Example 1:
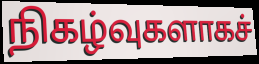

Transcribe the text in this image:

நிகழ்வுகளாகச்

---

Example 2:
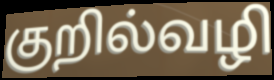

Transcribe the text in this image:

குறில்வழி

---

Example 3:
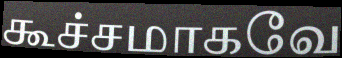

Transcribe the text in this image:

கூச்சமாகவே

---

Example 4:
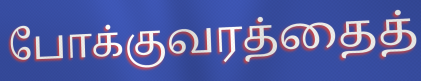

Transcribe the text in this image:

போக்குவரத்தைத்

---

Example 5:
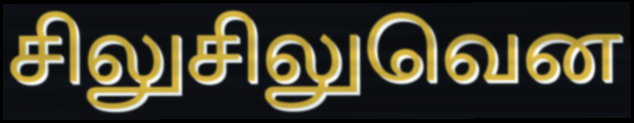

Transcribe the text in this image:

சிலுசிலுவென